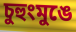
চুহুংমুঙে